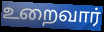
உறைவார்